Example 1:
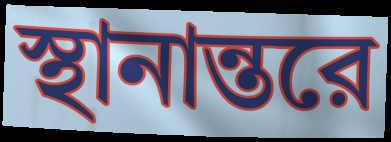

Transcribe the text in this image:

স্থানান্তরে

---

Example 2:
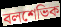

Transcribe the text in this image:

বলশেভিক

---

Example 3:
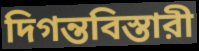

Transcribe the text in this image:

দিগন্তবিস্তারী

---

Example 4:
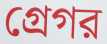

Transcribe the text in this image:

গ্রেগর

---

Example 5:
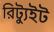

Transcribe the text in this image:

রিট্যুইট